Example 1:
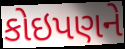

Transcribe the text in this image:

કોઇપણને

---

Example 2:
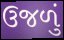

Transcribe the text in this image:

ઉજળું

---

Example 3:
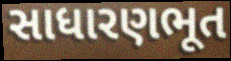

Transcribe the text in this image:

સાધારણભૂત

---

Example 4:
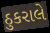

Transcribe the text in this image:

ઠુકરાલે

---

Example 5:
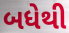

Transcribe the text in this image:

બધેથી